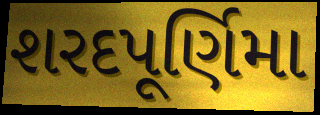
શરદપૂર્ણિમા